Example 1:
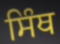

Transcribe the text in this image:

ਸਿੰਥ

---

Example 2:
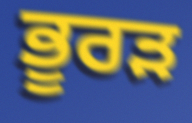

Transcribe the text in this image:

ਭੂਰੜ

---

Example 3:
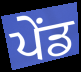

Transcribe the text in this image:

ਪੇਂਡ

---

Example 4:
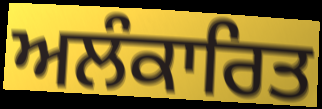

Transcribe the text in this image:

ਅਲੰਕਾਰਿਤ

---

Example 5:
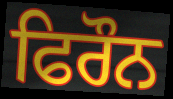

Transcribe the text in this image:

ਫਿਰੌਨ